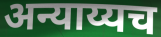
अन्याय्यच